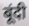
बूंदी